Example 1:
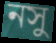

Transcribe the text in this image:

নসু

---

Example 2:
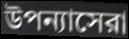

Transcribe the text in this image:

উপন্যাসেরা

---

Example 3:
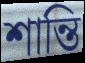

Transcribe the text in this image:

শান্তি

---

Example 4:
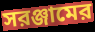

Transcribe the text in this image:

সরঞ্জামের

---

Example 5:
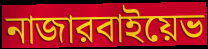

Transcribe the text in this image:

নাজারবাইয়েভ